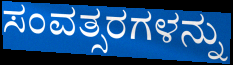
ಸಂವತ್ಸರಗಳನ್ನು